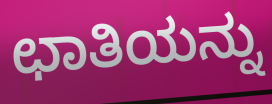
ಛಾತಿಯನ್ನು